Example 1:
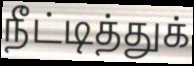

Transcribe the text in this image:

நீட்டித்துக்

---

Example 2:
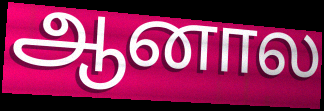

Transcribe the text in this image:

ஆனால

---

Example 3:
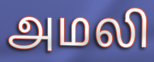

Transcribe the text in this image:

அமலி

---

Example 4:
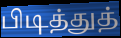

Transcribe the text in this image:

பிடித்துத்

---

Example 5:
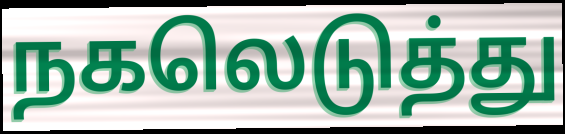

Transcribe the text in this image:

நகலெடுத்து